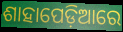
ଶାହାପେଡ଼ିଆରେ